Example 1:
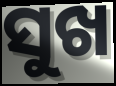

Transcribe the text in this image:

ସୁଖ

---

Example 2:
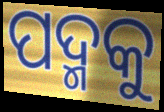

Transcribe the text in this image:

ପଦ୍ମକୁ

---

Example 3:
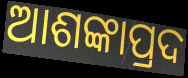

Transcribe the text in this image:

ଆଶଙ୍କାପ୍ରଦ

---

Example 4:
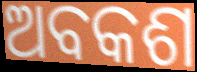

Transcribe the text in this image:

ଅବକଶ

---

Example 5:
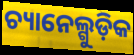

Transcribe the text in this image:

ଚ୍ୟାନେଲ୍ଗୁଡ଼ିକ